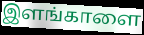
இளங்காளை